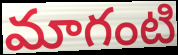
మాగంటి